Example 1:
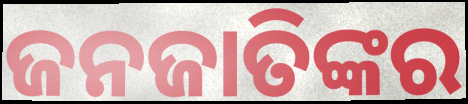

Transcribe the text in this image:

ଜନଜାତିଙ୍କର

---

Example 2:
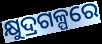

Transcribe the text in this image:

କ୍ଷୁଦ୍ରଗଳ୍ପରେ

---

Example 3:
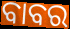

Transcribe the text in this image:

ବାବର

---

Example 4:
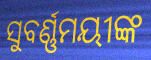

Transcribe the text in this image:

ସୁବର୍ଣ୍ଣମୟୀଙ୍କ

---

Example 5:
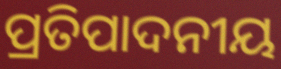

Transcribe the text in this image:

ପ୍ରତିପାଦନୀୟ